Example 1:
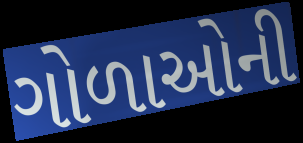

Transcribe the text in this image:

ગોળાઓની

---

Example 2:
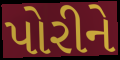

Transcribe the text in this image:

પોરીને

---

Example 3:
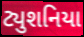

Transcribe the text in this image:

ટ્યુશનિયા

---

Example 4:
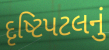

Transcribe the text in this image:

દૃષ્ટિપટલનું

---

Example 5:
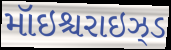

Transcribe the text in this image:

મૉઇશ્ચરાઇઝ્ડ